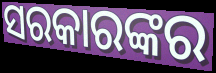
ସରକାରଙ୍କର